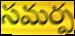
సమర్ప